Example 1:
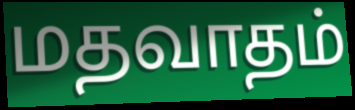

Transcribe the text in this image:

மதவாதம்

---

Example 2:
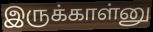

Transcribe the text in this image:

இருக்காள்னு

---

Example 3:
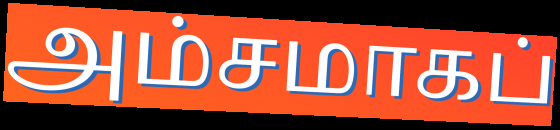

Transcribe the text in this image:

அம்சமாகப்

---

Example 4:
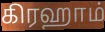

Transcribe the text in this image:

கிரஹாம்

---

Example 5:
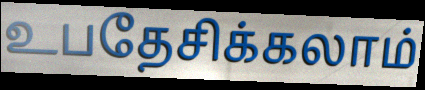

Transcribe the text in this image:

உபதேசிக்கலாம்